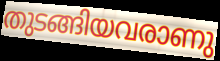
തുടങ്ങിയവരാണു